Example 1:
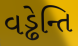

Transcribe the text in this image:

વડ્ઢેન્તિ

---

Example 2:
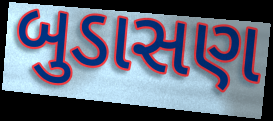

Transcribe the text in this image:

બુડાસણ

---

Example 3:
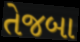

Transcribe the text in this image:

તેજબા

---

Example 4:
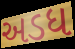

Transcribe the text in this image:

અડધ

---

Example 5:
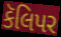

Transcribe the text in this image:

કૅલિપર